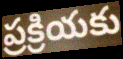
ప్రక్రియకు